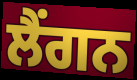
ਲੈਂਗਨ